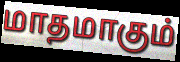
மாதமாகும்